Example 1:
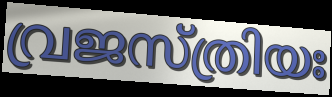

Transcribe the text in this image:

വ്രജസ്ത്രിയഃ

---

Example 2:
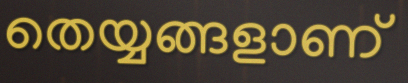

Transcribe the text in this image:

തെയ്യങ്ങളാണ്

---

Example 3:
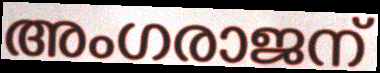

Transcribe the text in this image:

അംഗരാജന്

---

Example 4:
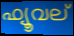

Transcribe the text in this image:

ഫ്യൂവല്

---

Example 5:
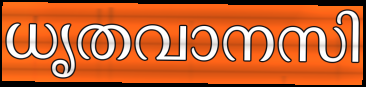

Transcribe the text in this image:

ധൃതവാനസി